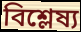
বিশ্লেষ্য